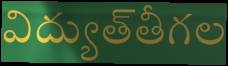
విద్యుత్‌తీగల